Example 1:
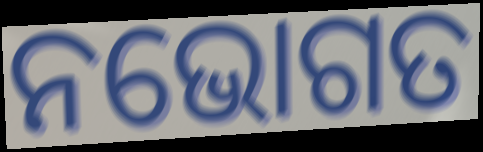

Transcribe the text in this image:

ନଭୋଗତ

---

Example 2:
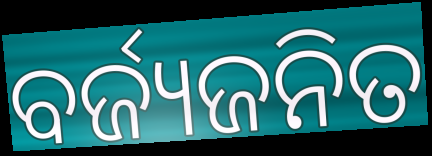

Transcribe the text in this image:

ବର୍ଜ୍ୟଜନିତ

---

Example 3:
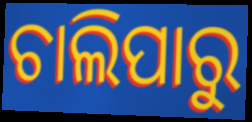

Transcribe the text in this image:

ଚାଲିପାରୁ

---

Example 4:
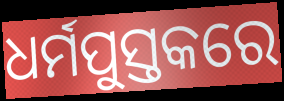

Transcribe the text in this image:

ଧର୍ମପୁସ୍ତକରେ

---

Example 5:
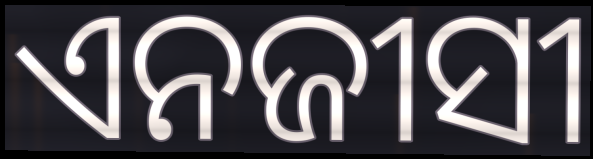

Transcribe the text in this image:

ଏନଜୀସୀ